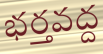
భర్తవద్ద